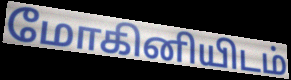
மோகினியிடம்